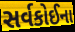
સર્વકોઈના